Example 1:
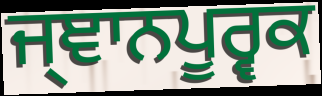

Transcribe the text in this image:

ਜ੍ਞਾਨਪੂਰ੍ਵਕ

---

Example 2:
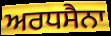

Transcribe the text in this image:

ਅਰਧਸੈਨਾ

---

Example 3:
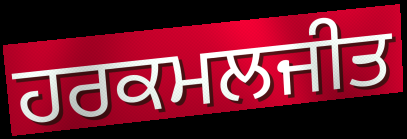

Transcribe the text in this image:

ਹਰਕਮਲਜੀਤ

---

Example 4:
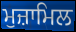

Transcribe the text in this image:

ਮੁਜ਼ਾਮਿਲ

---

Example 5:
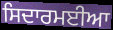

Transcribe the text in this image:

ਸਿਦਾਰਮਈਆ